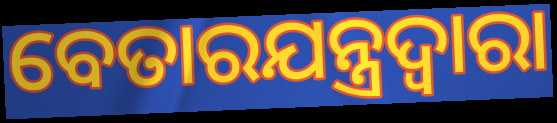
ବେତାରଯନ୍ତ୍ରଦ୍ୱାରା